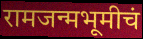
रामजन्मभूमीचं